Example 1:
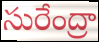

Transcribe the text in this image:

సురేంద్రా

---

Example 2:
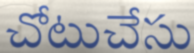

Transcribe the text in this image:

చోటుచేసు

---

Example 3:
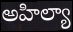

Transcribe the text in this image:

అహిల్యా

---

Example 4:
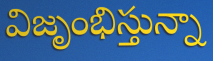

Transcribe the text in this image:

విజృంభిస్తున్నా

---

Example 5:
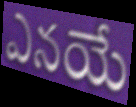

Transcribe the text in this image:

ఎనయే